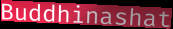
Buddhinashat